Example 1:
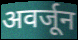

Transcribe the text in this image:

अवर्जून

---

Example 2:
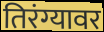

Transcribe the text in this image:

तिरंग्यावर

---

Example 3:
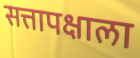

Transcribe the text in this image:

सत्तापक्षाला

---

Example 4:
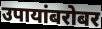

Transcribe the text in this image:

उपायांबरोबर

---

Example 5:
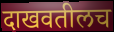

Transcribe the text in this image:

दाखवतीलच